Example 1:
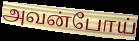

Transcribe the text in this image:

அவன்போய்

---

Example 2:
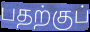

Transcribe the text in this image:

பதற்குப்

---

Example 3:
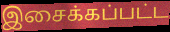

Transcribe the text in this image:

இசைக்கப்பட்ட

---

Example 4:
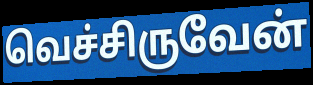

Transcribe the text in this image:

வெச்சிருவேன்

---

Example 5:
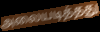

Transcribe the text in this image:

அலையடித்தது